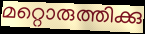
മറ്റൊരുത്തിക്കു